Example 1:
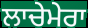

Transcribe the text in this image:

ਲਾਚੇਮੇਰਾ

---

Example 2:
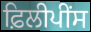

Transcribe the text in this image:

ਫ਼ਿਲੀਪੀਂਸ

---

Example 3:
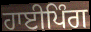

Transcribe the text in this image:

ਹਾਈਪਿੰਗ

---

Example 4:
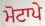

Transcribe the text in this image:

ਮੋਟਾਪੇ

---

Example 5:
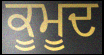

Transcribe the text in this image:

ਕੂਮੂਦ